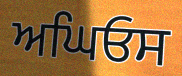
ਅਘਿਓਸ